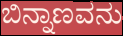
ಬಿನ್ನಾಣವನು